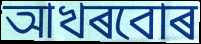
আখৰবোৰ